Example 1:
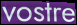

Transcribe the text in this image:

vostre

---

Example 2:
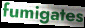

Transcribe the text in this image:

fumigates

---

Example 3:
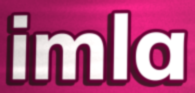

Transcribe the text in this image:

imla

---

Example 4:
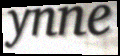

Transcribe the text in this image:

ynne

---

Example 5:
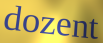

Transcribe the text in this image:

dozent